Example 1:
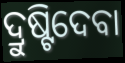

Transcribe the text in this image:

ଦ୍ରୁଷ୍ଟିଦେବା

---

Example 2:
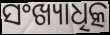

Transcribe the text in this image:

ସଂଖ୍ୟାଧିତ୍କ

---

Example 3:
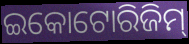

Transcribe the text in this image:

ଇକୋଟୋରିଜିମ୍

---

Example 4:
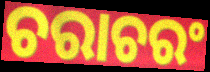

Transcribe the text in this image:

ଚରାଚରଂ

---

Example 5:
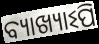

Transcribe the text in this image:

ବ୍ୟାଖ୍ୟାଽପି